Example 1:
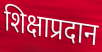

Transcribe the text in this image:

शिक्षाप्रदान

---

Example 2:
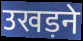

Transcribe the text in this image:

उखड़ने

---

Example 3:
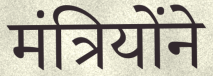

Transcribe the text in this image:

मंत्रियोंने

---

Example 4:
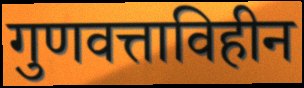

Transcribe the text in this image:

गुणवत्ताविहीन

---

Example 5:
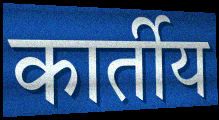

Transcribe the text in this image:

कार्तीय